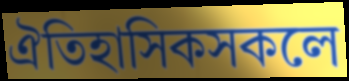
ঐতিহাসিকসকলে